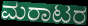
ಮರಾಟರ